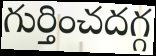
గుర్తించదగ్గ